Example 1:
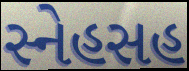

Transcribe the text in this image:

સ્નેહસહ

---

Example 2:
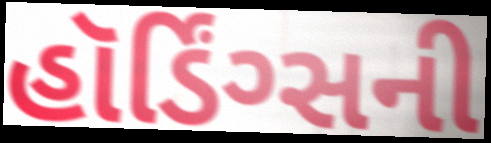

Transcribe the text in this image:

હૉર્ડિંગ્સની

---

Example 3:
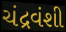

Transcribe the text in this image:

ચંદ્રવંશી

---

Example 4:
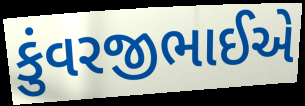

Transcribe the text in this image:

કુંવરજીભાઈએ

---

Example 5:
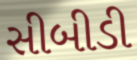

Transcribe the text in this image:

સીબીડી